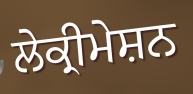
ਲੇਕ੍ਰੀਮੇਸ਼ਨ